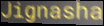
Jignasha